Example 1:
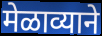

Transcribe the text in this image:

मेळाव्याने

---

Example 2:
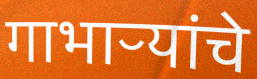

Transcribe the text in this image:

गाभाऱ्यांचे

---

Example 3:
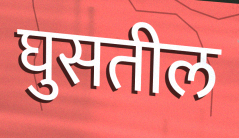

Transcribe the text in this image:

घुसतील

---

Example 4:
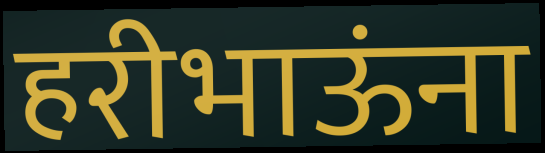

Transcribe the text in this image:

हरीभाऊंना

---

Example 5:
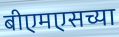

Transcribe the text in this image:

बीएमएसच्या